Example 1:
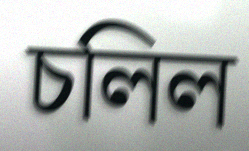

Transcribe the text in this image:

চলিল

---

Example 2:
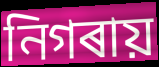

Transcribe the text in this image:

নিগৰায়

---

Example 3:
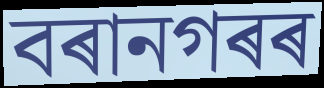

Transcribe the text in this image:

বৰানগৰৰ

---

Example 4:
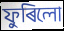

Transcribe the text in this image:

ফুৰিলো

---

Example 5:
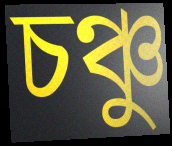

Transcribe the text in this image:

চঞ্চু